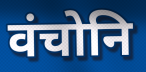
वंचोनि